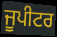
ਜੂਪੀਟਰ